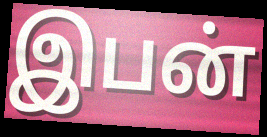
இபன்